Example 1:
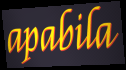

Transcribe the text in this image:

apabila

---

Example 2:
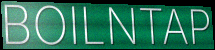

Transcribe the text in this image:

BOILNTAP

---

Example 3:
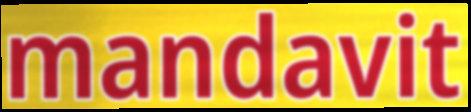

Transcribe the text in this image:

mandavit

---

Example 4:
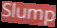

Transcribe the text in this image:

Slump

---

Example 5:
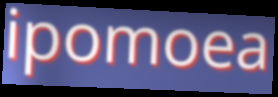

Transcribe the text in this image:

ipomoea